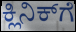
ಕ್ಲಿನಿಕ್‍ಗೆ